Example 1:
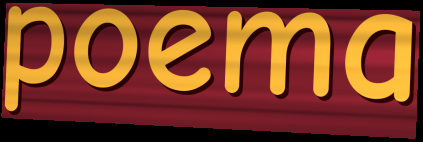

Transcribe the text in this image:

poema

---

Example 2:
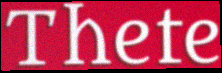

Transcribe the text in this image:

Thete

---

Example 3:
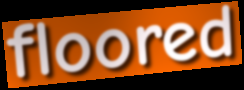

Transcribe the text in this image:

floored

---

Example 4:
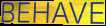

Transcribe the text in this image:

BEHAVE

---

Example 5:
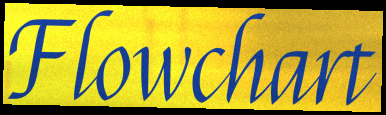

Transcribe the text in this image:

Flowchart